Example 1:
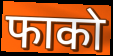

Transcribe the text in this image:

फाको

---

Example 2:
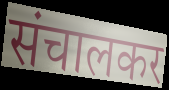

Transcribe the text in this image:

संचालकर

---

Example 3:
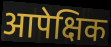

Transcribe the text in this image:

आपेक्षिक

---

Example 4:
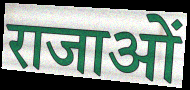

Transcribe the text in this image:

राजाओं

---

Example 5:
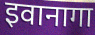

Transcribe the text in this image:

इवानागा